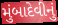
મુંબાદેવીનું